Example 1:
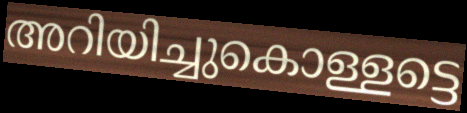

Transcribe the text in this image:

അറിയിച്ചുകൊള്ളട്ടെ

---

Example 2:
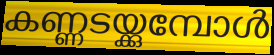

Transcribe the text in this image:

കണ്ണടയ്ക്കുമ്പോൾ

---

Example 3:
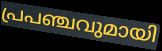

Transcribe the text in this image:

പ്രപഞ്ചവുമായി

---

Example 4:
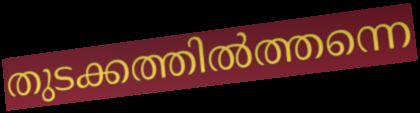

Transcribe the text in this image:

തുടക്കത്തിൽത്തന്നെ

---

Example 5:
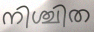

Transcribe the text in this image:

നിശ്ചിത